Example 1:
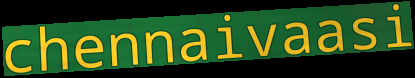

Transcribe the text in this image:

chennaivaasi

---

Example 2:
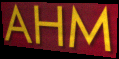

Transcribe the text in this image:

AHM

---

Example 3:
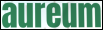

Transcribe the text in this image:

aureum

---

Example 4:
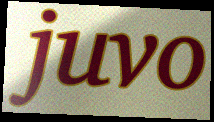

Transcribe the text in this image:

juvo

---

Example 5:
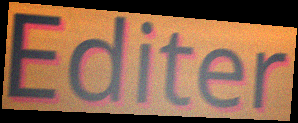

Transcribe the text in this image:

Editer